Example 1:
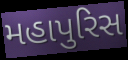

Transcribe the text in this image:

મહાપુરિસ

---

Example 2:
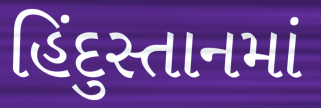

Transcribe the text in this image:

હિંદુસ્તાનમાં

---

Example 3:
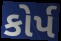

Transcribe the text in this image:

કોર્પ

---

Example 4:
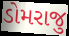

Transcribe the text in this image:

ડોમરાજુ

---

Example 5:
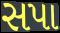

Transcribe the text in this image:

સપા